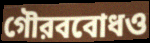
গৌরববোধও